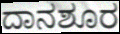
ದಾನಶೂರ